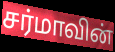
சர்மாவின்